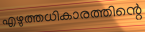
എഴുത്തധികാരത്തിന്റെ